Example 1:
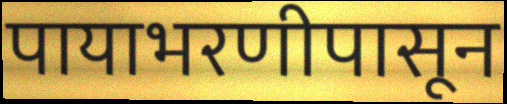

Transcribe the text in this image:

पायाभरणीपासून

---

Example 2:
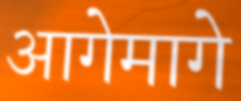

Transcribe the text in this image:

आगेमागे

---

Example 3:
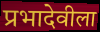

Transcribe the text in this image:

प्रभादेवीला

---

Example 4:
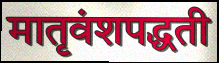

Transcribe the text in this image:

मातृवंशपद्धती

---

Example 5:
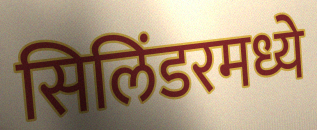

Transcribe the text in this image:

सिलिंडरमध्ये